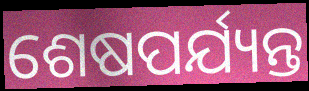
ଶେଷପର୍ଯ୍ୟନ୍ତ